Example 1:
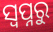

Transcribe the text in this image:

ସ୍ୱପ୍ନରୁ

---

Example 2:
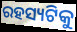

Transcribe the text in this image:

ରହସ୍ୟଟିକୁ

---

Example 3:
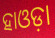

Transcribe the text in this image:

ହାଓଡ଼ା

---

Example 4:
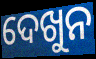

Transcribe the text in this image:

ଦେଖୁନ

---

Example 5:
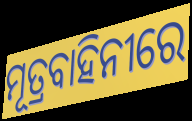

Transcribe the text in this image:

ମୂତ୍ରବାହିନୀରେ